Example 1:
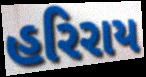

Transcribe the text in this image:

હરિરાય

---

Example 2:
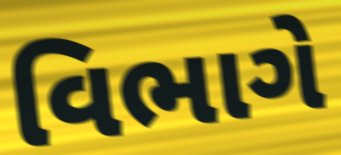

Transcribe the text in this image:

વિભાગે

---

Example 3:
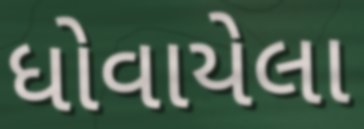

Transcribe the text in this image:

ધોવાયેલા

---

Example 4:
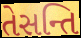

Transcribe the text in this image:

તેસન્તિ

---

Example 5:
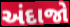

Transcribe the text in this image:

અંદાજો